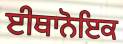
ਈਥਾਨੋਇਕ